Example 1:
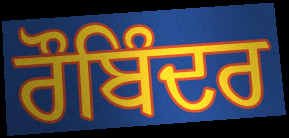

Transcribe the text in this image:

ਰੌਬਿੰਦਰ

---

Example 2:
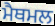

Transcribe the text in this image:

ਮੈਥਮਲ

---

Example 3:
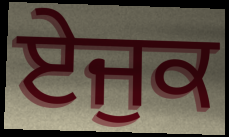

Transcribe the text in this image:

ਏਜੁਕ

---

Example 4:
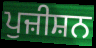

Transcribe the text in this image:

ਪੁਜ਼ੀਸ਼ਨ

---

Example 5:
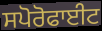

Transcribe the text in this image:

ਸਪੋਰੋਫਾਈਟ